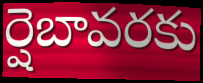
ర్షెబావరకు